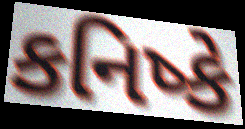
કનિષ્કે